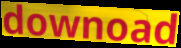
downoad